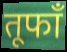
तूफाँ